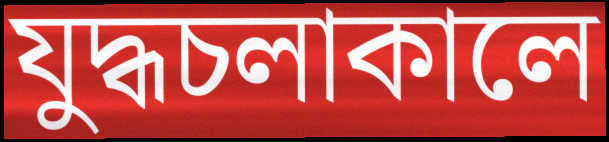
যুদ্ধচলাকালে